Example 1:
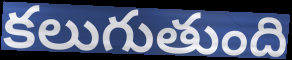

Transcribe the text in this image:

కలుగుతుంది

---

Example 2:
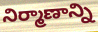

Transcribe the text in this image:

నిర్మాణాన్ని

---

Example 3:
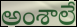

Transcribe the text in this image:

అంశాలే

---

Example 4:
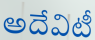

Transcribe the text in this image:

అదేవిటీ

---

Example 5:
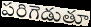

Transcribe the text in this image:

పరిగెడుతూ